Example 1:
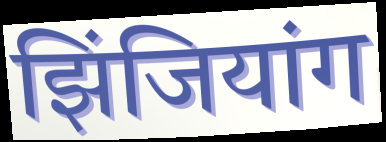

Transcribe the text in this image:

झिंजियांग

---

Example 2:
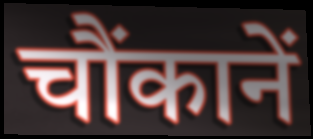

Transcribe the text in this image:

चौंकानें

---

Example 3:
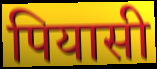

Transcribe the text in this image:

पियासी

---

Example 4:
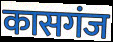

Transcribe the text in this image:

कासगंज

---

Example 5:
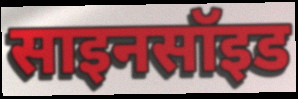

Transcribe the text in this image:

साइनसॉइड